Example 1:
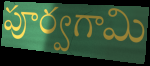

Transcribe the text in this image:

పూర్వగామి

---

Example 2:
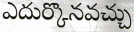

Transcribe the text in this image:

ఎదుర్కొనవచ్చు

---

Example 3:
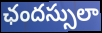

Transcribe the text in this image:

ఛందస్సులా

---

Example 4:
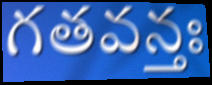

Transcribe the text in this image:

గతవన్తః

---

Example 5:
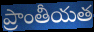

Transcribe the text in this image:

ప్రాంతీయత